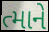
ત્માને